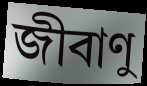
জীবাণু